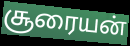
சூரையன்